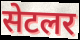
सेटलर